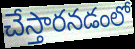
చేస్తారనడంలో